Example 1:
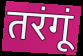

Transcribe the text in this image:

तरंगूं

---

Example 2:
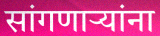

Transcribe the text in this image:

सांगणार्‍यांना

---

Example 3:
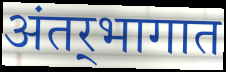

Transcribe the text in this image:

अंतर्भागात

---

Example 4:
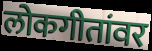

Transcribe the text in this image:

लोकगीतांवर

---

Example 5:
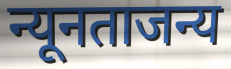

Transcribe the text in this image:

न्यूनताजन्य